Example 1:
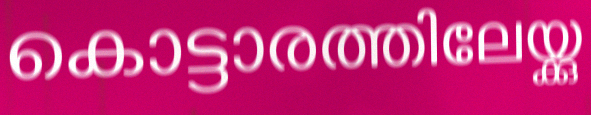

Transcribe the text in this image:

കൊട്ടാരത്തിലേയ്ക്കു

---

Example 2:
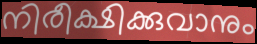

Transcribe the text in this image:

നിരീക്ഷിക്കുവാനും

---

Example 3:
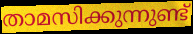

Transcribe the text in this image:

താമസിക്കുന്നുണ്ട്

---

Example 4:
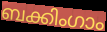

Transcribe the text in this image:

ബക്കിംഗാം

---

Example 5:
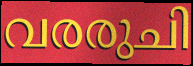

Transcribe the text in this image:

വരരുചി